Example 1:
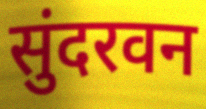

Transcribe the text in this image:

सुंदरवन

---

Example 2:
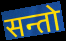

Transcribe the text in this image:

सन्तो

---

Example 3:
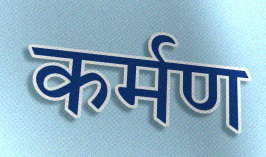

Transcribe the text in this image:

कर्मण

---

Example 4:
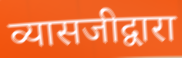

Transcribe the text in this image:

व्यासजीद्वारा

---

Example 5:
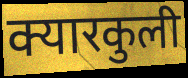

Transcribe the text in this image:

क्यारकुली